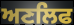
ਅਣਲਿਫ